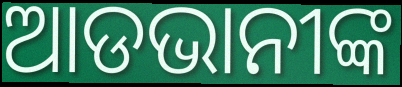
ଆଡଭାନୀଙ୍କ